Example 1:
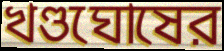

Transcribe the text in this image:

খণ্ডঘোষের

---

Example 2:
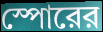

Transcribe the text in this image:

স্পোরের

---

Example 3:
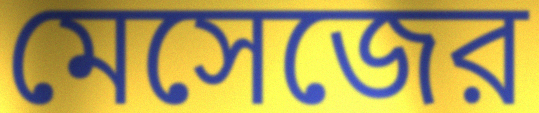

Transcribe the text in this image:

মেসেজের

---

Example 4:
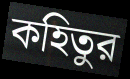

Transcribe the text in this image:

কহিতুর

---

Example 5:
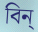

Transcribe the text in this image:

বিন্